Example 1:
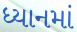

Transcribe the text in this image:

ધ્યાનમાં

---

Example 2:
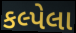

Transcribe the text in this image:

કલ્પેલા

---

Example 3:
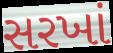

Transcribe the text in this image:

સરખાં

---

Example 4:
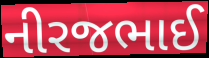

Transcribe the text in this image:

નીરજભાઈ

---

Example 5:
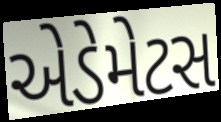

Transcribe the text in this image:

એડેમેટસ